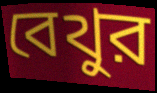
বেথুর